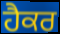
ਹੈਕਰ